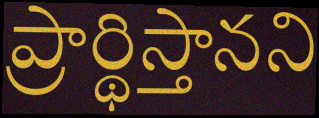
ప్రార్థిస్తానని